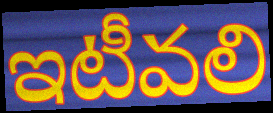
ఇటీవలి